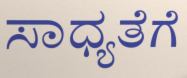
ಸಾಧ್ಯತೆಗೆ